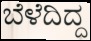
ಬೆಳೆದಿದ್ದ